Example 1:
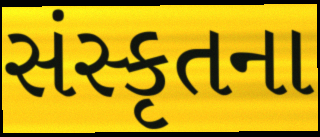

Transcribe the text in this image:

સંસ્‍કૃતના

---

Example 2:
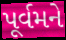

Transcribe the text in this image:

પૂર્વમને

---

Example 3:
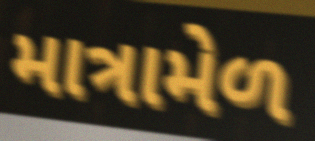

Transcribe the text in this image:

માત્રામેળ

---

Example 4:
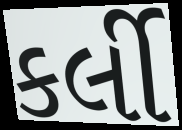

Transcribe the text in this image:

કર્લી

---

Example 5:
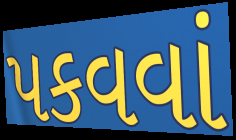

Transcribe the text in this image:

પકવવાં